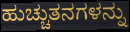
ಹುಚ್ಚುತನಗಳನ್ನು